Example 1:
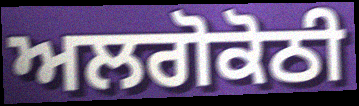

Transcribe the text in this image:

ਅਲਗੋਕੋਠੀ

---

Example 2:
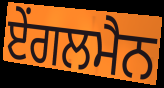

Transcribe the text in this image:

ਏਂਗਲਮੈਨ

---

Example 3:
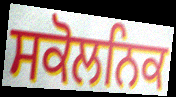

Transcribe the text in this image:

ਸਕੋਲਨਿਕ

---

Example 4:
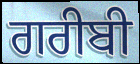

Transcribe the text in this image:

ਗਰੀਬੀ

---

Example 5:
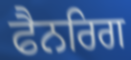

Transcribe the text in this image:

ਫੈਨਰਿਗ